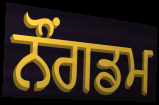
ਨੌਂਗਡਮ